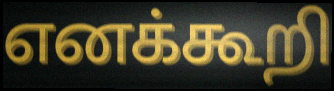
எனக்கூறி